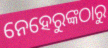
ନେହେରୁଙ୍କଠାରୁ